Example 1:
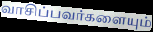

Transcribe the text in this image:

வாசிப்பவர்களையும்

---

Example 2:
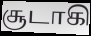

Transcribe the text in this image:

சூடாகி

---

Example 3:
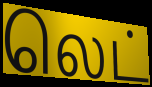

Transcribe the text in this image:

லெட்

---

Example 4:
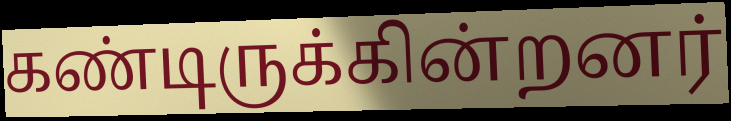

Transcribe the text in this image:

கண்டிருக்கின்றனர்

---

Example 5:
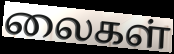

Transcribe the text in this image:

லைகள்